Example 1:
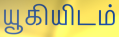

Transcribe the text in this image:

யூகியிடம்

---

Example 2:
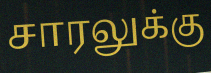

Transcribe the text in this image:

சாரலுக்கு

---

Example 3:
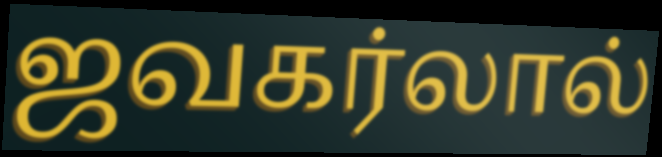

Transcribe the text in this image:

ஜவகர்லால்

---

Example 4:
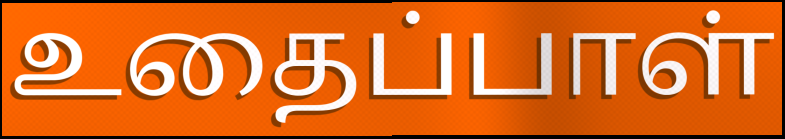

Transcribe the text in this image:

உதைப்பாள்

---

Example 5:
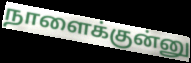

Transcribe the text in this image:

நாளைக்குன்னு